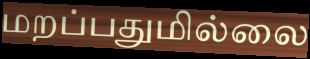
மறப்பதுமில்லை